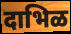
दाभिळ